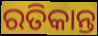
ରତିକାନ୍ତ